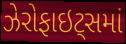
ઝેરોફાઇટ્સમાં